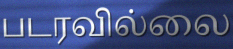
படரவில்லை